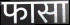
फासा